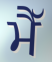
ਮੈੱ